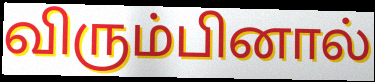
விரும்பினால்